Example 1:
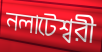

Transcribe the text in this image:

নলাটেশ্বরী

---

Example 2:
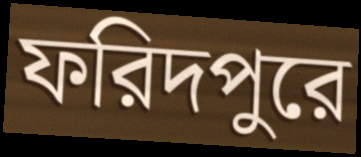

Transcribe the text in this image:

ফরিদপুরে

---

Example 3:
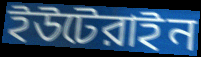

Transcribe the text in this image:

ইউটেরাইন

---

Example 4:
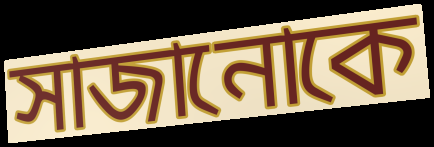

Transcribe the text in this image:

সাজানোকে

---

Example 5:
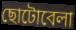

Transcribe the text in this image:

ছোটোবেলা